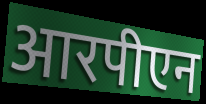
आरपीएन